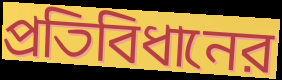
প্রতিবিধানের